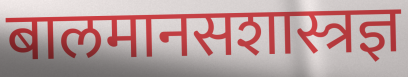
बालमानसशास्त्रज्ञ